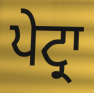
ਪੇਟ੍ਰਾ